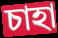
চাহা